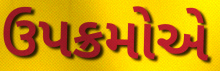
ઉપક્રમોએ